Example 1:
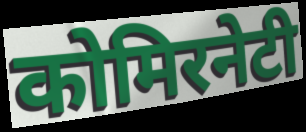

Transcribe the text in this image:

कोमिरनेटी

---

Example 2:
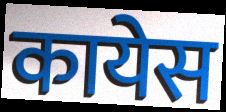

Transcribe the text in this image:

कायेस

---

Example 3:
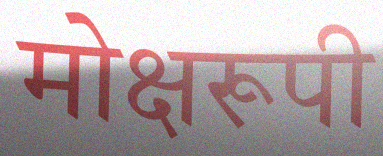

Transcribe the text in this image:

मोक्षरूपी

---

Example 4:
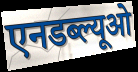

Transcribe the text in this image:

एनडब्ल्यूओ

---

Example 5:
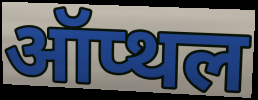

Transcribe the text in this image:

ऑप्थल